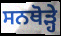
ਸਨਥੋੜ੍ਹੇ